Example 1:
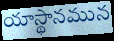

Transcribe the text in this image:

యాస్థానమున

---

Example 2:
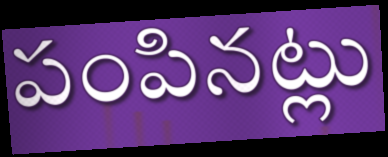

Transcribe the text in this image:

పంపినట్లు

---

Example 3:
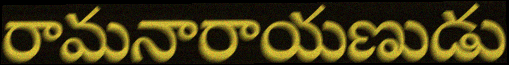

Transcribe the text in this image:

రామనారాయణుడు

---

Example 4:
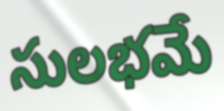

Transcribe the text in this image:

సులభమే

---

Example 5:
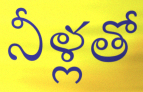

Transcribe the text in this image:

నీళ్లతో